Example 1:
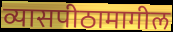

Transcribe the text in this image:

व्यासपीठामागील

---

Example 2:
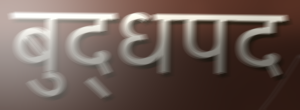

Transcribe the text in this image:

बुद्धपद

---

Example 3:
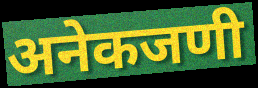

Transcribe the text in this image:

अनेकजणी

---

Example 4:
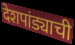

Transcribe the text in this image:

देशपांड्याची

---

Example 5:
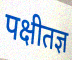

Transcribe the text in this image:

पक्षीतज्ञ